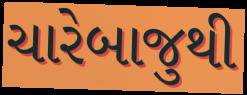
ચારેબાજુથી